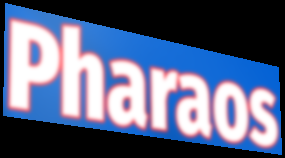
Pharaos